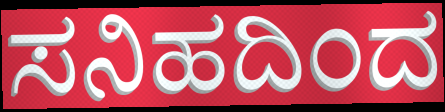
ಸನಿಹದಿಂದ